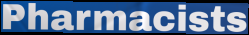
Pharmacists